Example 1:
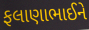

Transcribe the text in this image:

ફલાણાભાઈને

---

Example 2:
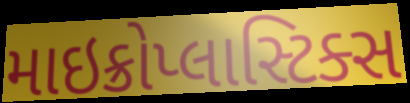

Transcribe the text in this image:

માઇક્રોપ્લાસ્ટિક્સ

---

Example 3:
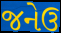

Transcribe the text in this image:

જનેઉ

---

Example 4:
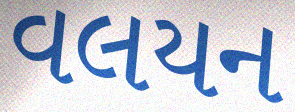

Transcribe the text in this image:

વલયન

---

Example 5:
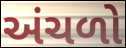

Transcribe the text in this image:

અંચળો